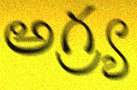
అగ్ర్య